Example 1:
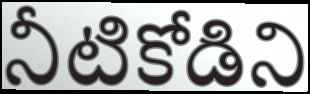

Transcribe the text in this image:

నీటికోడిని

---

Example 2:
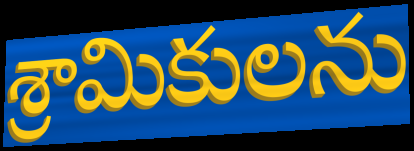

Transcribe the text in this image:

శ్రామికులను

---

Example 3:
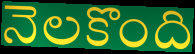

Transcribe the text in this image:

నెలకొంది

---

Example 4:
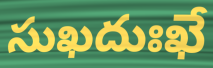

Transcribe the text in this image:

సుఖదుఃఖే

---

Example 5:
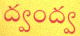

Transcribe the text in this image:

ద్వంద్వ